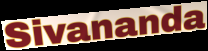
Sivananda